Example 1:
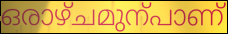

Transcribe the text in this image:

ഒരാഴ്ചമുന്പാണ്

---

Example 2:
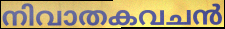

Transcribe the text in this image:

നിവാതകവചൻ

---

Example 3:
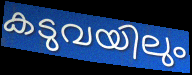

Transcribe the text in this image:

കടുവയിലും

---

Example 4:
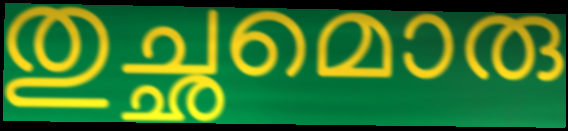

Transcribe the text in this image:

തുച്ഛമൊരു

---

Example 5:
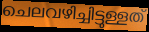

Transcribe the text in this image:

ചെലവഴിച്ചിട്ടുള്ളത്